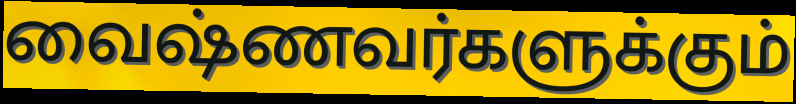
வைஷ்ணவர்களுக்கும்